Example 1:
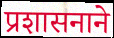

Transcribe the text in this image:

प्रशासनाने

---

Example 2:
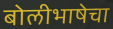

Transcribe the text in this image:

बोलीभाषेचा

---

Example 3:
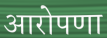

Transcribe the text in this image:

आरोपणा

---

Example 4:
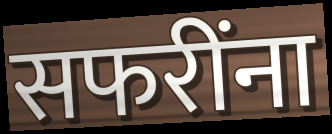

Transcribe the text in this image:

सफरींना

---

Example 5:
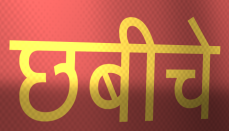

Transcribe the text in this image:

छबीचे